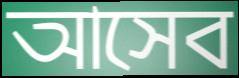
আসেব